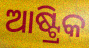
ଆଷ୍ଟ୍ରିକ